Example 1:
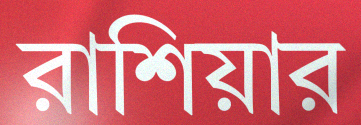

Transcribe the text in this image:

রাশিয়ার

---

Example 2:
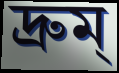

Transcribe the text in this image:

দ্রুম্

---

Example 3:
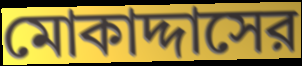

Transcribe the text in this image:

মোকাদ্দাসের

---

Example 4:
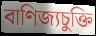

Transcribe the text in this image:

বাণিজ্যচুক্তি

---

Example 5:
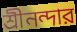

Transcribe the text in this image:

শ্রীনন্দার